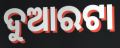
ଦୁଆରଟା